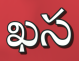
ఖస